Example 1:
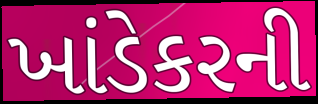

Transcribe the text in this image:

ખાંડેકરની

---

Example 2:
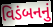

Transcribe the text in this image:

વિડંબનનું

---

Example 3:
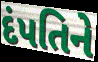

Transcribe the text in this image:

દંપતિને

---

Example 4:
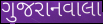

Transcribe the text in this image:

ગુજરાનવાલા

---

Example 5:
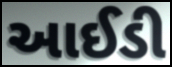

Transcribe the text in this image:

આઈડી